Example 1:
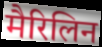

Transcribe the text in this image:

मैरिलिन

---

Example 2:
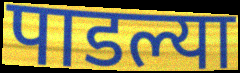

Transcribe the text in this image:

पाडल्या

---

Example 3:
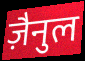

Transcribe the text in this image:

ज़ैनुल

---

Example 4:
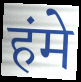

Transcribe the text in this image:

हंमे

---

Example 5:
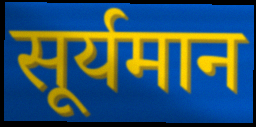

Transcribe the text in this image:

सूर्यमान